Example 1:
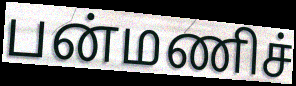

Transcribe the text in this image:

பன்மணிச்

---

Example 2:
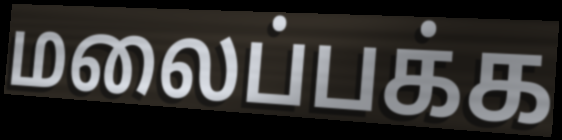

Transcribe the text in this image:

மலைப்பக்க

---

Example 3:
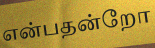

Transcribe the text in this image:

என்பதன்றோ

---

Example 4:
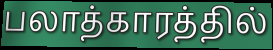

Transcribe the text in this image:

பலாத்காரத்தில்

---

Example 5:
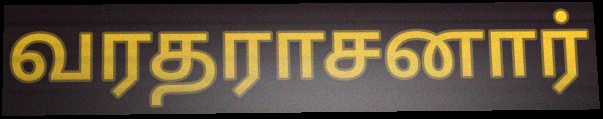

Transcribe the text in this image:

வரதராசனார்